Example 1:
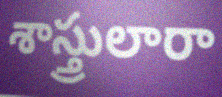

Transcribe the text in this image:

శాస్త్రులారా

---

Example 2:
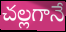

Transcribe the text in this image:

చల్లగానే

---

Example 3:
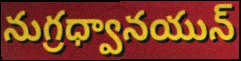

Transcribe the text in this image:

నుగ్రధ్వానయున్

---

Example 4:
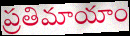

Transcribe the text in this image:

ప్రతిమాయాం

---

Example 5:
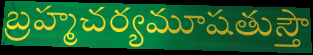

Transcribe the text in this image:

బ్రహ్మచర్యమూషతుస్తౌ